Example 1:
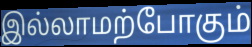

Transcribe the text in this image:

இல்லாமற்போகும்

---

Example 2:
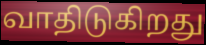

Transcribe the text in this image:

வாதிடுகிறது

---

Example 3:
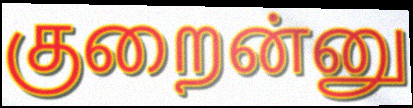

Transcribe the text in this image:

குறைன்னு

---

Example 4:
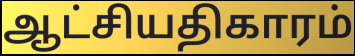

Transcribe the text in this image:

ஆட்சியதிகாரம்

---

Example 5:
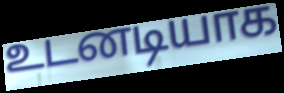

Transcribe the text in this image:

உடனடியாக